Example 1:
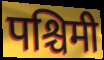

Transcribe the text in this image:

पश्चिमी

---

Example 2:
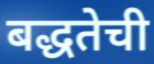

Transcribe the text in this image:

बद्धतेची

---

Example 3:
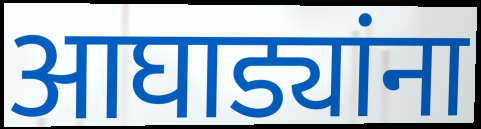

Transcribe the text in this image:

आघाड्यांना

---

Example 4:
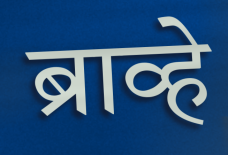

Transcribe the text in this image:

ब्राव्हे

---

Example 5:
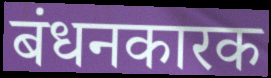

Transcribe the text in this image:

बंधनकारक